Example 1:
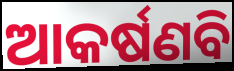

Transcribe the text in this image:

ଆକର୍ଷଣବି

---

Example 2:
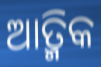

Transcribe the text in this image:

ଆତ୍ମିକ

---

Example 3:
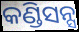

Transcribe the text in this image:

କଣ୍ଡିସନ୍ସ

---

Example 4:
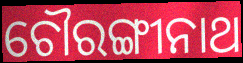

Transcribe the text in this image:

ଚୌରଙ୍ଗୀନାଥ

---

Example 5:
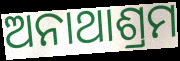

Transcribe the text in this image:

ଅନାଥାଶ୍ରମ